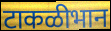
टाकळीभान